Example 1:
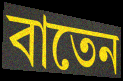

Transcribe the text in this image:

বাতেন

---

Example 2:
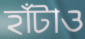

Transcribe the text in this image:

হাঁটাও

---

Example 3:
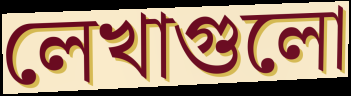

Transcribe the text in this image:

লেখাগুলো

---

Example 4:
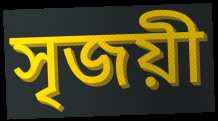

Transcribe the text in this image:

সৃজয়ী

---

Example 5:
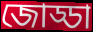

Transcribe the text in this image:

জোড্ডা